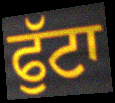
ਫੁੱਟਾ